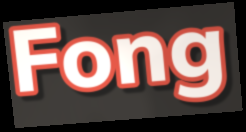
Fong